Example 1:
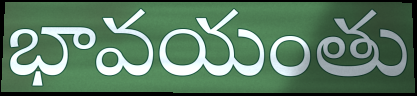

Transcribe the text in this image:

భావయంతు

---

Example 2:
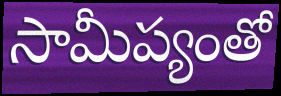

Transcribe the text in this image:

సామీప్యంతో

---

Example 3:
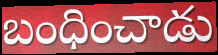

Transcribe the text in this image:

బంధించాడు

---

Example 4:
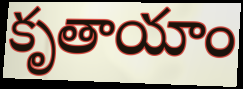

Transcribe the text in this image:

కృతాయాం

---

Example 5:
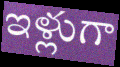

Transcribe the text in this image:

ఇళ్లుగా